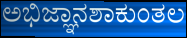
ಅಭಿಜ್ಞಾನಶಾಕುಂತಲ